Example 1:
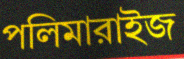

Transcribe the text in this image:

পলিমারাইজ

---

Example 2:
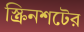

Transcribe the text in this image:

স্ক্রিনশটের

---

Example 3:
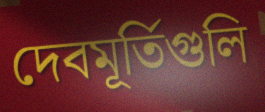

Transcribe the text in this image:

দেবমূর্তিগুলি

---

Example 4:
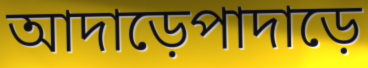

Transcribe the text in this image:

আদাড়েপাদাড়ে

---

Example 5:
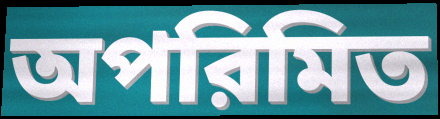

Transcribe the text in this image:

অপরিমিত